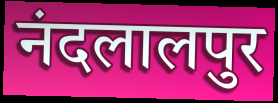
नंदलालपुर